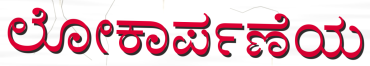
ಲೋಕಾರ್ಪಣೆಯ